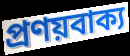
প্রণয়বাক্য